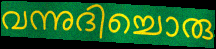
വന്നുദിച്ചൊരു